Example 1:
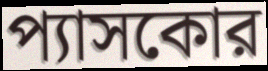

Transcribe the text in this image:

প্যাসকোর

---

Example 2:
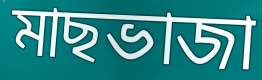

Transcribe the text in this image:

মাছভাজা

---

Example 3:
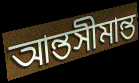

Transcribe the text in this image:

আন্তসীমান্ত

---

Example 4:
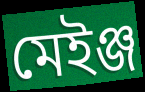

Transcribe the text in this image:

মেইঞ্জ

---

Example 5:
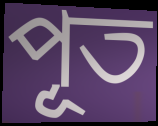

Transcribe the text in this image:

পূত